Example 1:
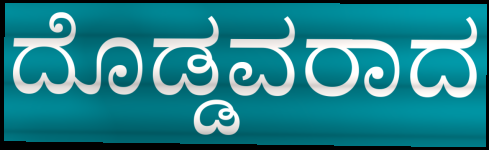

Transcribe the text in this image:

ದೊಡ್ಡವರಾದ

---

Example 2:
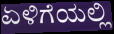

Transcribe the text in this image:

ಏಳಿಗೆಯಲ್ಲಿ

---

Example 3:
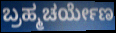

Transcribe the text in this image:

ಬ್ರಹ್ಮಚರ್ಯೇಣ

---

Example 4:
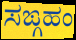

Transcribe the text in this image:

ಸಙ್ಗಹಂ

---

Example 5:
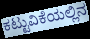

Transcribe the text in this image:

ಕಟ್ಟುವಿಕೆಯಲ್ಲಿನ